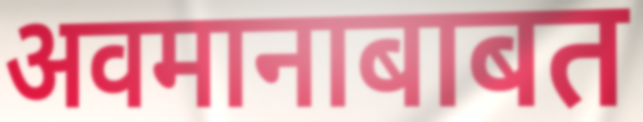
अवमानाबाबत